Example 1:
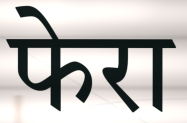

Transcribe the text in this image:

फेरा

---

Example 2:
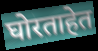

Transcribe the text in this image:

घोरताहेत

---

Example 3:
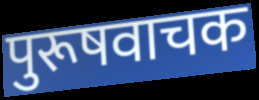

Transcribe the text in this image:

पुरूषवाचक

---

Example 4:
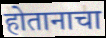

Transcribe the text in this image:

होतानाचा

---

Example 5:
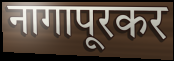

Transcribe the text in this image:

नागापूरकर